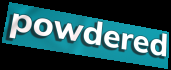
powdered